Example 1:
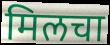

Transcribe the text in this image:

मिलचा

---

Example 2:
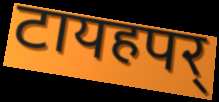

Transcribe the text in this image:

टायहपर्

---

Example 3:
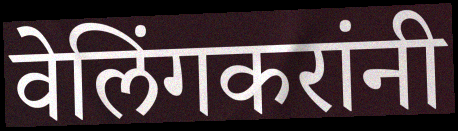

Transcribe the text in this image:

वेलिंगकरांनी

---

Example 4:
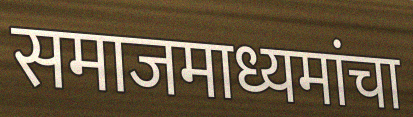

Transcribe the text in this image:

समाजमाध्यमांचा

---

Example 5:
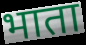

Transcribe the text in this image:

भाता